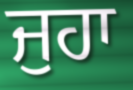
ਜੁਹਾ